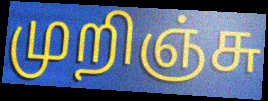
முறிஞ்சு